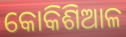
କୋକିଶିଆଳ